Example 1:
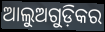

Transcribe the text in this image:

ଆଲୁଅଗୁଡ଼ିକର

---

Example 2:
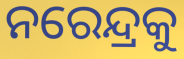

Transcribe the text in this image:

ନରେନ୍ଦ୍ରକୁ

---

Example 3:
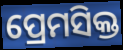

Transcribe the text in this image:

ପ୍ରେମସିକ୍ତ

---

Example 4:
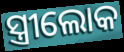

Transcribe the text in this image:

ସ୍ତ୍ରୀଲୋକ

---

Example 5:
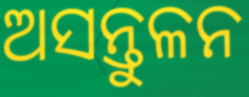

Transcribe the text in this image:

ଅସନ୍ତୁଳନ